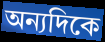
অন্যদিকে